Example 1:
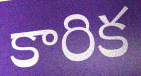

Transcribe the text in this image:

కారిక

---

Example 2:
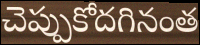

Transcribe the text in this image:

చెప్పుకోదగినంత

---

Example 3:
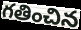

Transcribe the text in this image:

గతించిన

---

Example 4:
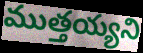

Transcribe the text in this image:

ముత్తయ్యని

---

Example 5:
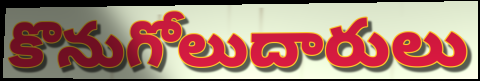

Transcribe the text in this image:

కొనుగోలుదారులు